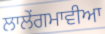
ਲਾਲੇਂਗਮਾਵੀਆ